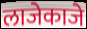
लाजेकाजे